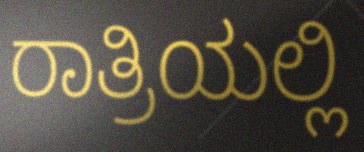
ರಾತ್ರಿಯಲ್ಲಿ